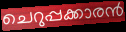
ചെറുപ്പക്കാരൻ